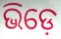
ଭିଡ଼େ